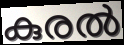
കുരൽ